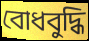
বোধবুদ্ধি